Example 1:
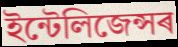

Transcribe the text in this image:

ইন্টেলিজেন্সৰ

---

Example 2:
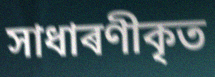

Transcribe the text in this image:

সাধাৰণীকৃত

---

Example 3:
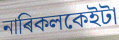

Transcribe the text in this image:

নাৰিকলকেইটা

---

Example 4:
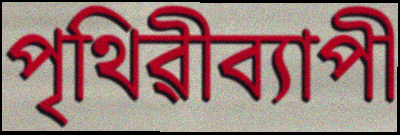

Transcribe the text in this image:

পৃথিৱীব্যাপী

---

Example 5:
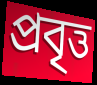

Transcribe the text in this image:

প্ৰবৃত্ত